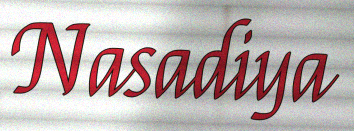
Nasadiya